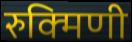
रुक्‍मिणी